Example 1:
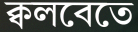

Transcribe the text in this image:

ক্বলবেতে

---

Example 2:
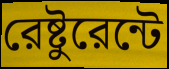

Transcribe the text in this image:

রেষ্টুরেন্টে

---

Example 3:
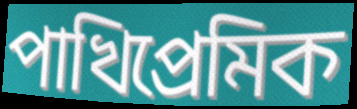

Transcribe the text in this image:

পাখিপ্রেমিক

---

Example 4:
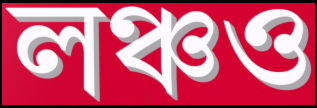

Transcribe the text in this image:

লঞ্চও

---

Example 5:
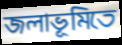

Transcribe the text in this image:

জলাভূমিতে